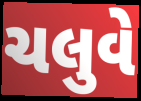
ચલુવે